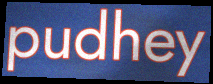
pudhey